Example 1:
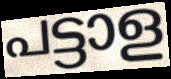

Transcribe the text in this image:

പട്ടാള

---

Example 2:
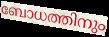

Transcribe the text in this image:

ബോധത്തിനും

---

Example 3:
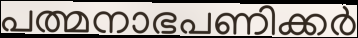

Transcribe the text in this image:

പത്മനാഭപണിക്കർ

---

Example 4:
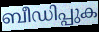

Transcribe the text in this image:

ബീഡിപ്പുക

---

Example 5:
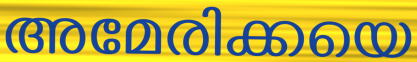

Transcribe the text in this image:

അമേരിക്കയെ